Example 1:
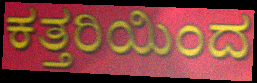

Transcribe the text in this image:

ಕತ್ತರಿಯಿಂದ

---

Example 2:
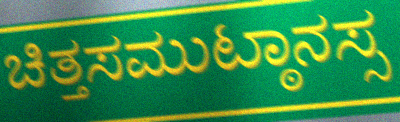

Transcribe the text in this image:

ಚಿತ್ತಸಮುಟ್ಠಾನಸ್ಸ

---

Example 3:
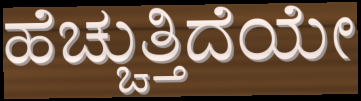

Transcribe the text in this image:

ಹೆಚ್ಚುತ್ತಿದೆಯೇ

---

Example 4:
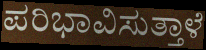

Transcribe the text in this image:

ಪರಿಭಾವಿಸುತ್ತಾಳೆ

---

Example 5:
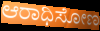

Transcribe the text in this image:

ಆರಾಧಿಸೋಣ